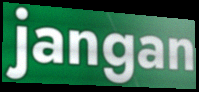
jangan